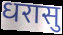
धरासु